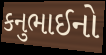
કનુભાઈનો